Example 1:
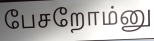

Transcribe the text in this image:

பேசறோம்னு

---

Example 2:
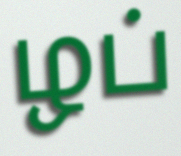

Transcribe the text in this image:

ழப்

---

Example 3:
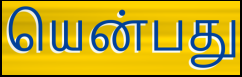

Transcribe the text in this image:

யென்பது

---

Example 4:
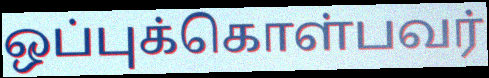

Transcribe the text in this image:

ஒப்புக்கொள்பவர்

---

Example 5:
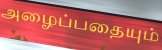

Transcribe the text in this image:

அழைப்பதையும்